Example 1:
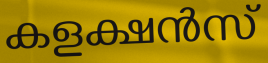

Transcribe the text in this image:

കളക്ഷൻസ്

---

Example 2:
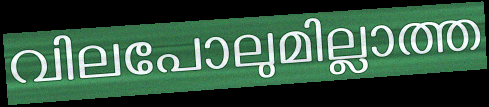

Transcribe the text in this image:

വിലപോലുമില്ലാത്ത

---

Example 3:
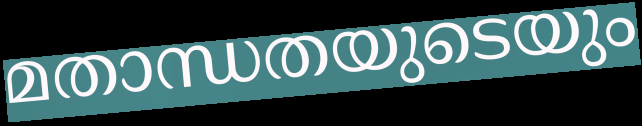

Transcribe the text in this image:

മതാന്ധതയുടെയും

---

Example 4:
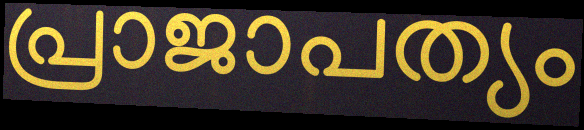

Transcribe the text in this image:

പ്രാജാപത്യം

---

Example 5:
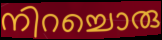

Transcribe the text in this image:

നിറച്ചൊരു